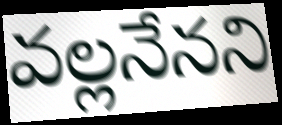
వల్లనేనని